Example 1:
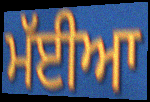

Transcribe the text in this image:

ਮੱਈਆ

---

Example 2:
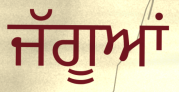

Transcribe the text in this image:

ਜੱਗੂਆਂ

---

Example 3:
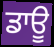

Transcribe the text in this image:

ਡਾਊ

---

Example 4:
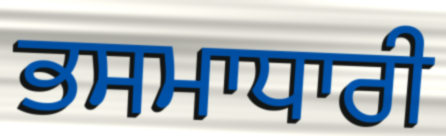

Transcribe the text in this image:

ਭਸਮਾਧਾਰੀ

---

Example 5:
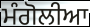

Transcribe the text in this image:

ਮੰਗੋਲੀਆ